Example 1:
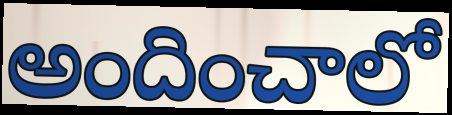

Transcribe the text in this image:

అందించాలో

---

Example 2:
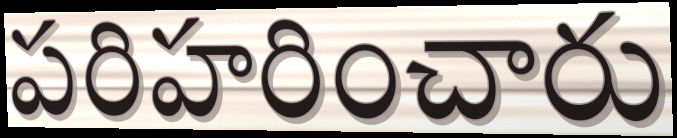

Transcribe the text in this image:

పరిహరించారు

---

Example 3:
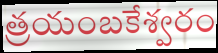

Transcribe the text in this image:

త్రయంబకేశ్వరం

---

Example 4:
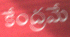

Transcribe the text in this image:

కేంద్రమే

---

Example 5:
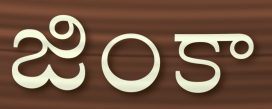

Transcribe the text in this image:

జింకా